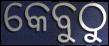
କେବୁଠୁ